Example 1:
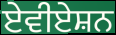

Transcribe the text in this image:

ਏਵੀਏਸ਼ਨ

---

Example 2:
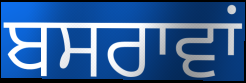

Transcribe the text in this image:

ਬਸਰਾਵਾਂ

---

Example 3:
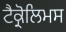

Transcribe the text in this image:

ਟੈਕ੍ਰੋਲਿਮਸ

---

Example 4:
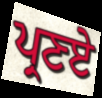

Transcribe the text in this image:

ਪ੍ਰਣਏ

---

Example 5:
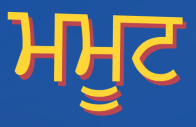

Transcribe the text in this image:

ਮਮੂਟ